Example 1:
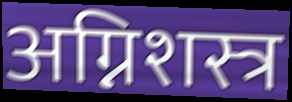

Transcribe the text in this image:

अग्निशस्त्र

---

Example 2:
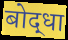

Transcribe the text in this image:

बोद्धा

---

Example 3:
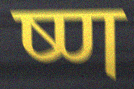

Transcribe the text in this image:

ष्ण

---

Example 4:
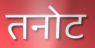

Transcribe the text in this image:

तनोट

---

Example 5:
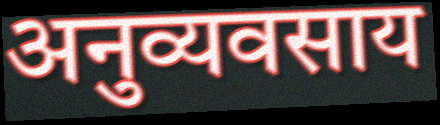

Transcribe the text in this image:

अनुव्यवसाय